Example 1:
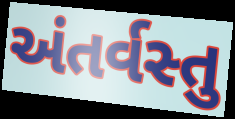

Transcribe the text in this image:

અંતર્વસ્તુ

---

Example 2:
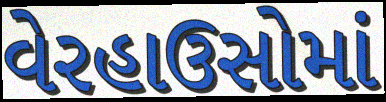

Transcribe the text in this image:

વેરહાઉસોમાં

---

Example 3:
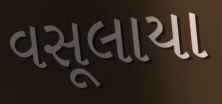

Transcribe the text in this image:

વસૂલાયા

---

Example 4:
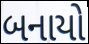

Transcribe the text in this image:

બનાયો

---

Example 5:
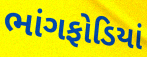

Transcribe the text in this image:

ભાંગફોડિયાં